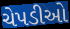
ચેપડીઓ